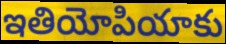
ఇతియోపియాకు